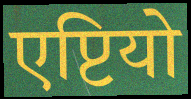
एप्टियो